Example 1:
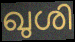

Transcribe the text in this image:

ഖുശി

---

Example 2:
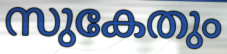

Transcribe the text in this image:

സുകേതും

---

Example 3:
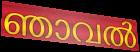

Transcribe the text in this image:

ഞാവൽ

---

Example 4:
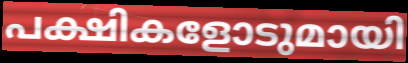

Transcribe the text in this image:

പക്ഷികളോടുമായി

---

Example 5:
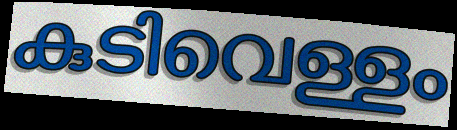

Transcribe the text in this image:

കുടിവെള്ളം